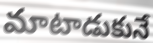
మాటాడుకునే